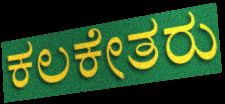
ಕಲಕೇತರು